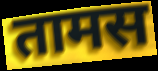
तामस